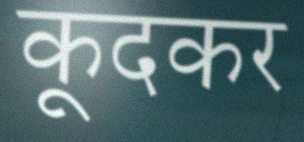
कूदकर